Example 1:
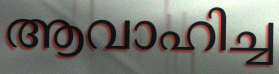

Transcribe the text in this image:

ആവാഹിച്ച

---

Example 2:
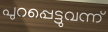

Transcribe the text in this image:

പുറപ്പെട്ടുവന്ന്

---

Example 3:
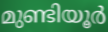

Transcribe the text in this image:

മുണ്ടിയൂർ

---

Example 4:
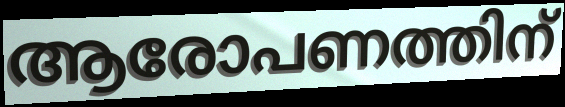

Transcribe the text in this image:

ആരോപണത്തിന്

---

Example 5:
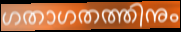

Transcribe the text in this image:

ഗതാഗതത്തിനും